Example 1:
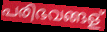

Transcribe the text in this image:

പരിഭവങ്ങള്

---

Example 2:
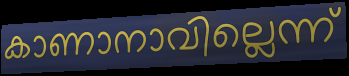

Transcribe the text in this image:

കാണാനാവില്ലെന്ന്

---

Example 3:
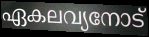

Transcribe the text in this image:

ഏകലവ്യനോട്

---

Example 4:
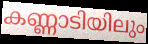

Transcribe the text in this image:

കണ്ണാടിയിലും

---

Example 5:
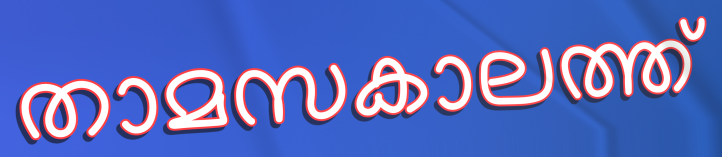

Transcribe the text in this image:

താമസകാലത്ത്